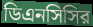
ডিএনসিসির